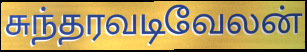
சுந்தரவடிவேலன்